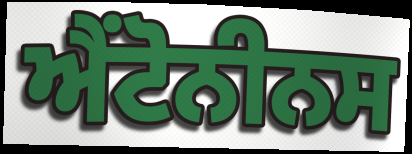
ਐਂਟੋਨੀਨਸ